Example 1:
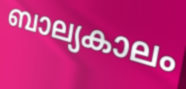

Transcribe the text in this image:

ബാല്യകാലം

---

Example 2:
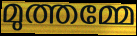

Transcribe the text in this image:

മുത്തമ്മേ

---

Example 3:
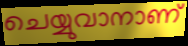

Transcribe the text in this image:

ചെയ്യുവാനാണ്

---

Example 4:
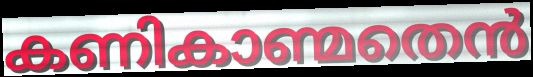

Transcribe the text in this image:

കണികാണ്മതെൻ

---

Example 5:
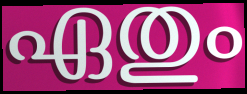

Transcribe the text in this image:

ഏതും